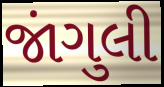
જાંગુલી